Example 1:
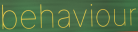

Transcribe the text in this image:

behaviour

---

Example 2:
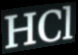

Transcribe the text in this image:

HCl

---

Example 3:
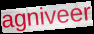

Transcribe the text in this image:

agniveer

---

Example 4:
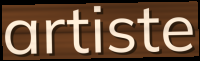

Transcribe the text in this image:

artiste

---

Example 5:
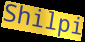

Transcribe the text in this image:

Shilpi